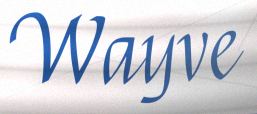
Wayve